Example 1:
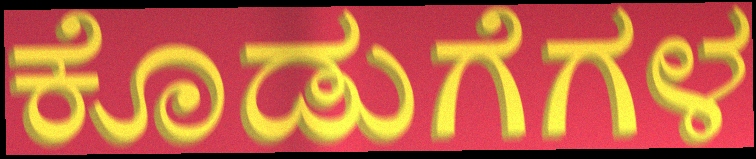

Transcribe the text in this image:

ಕೊಡುಗೆಗಳ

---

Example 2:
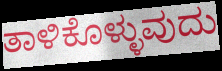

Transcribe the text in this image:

ತಾಳಿಕೊಳ್ಳುವುದು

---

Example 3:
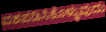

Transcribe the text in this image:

ವಶಪಡಿಸಿಕೊಳ್ಳುವುದು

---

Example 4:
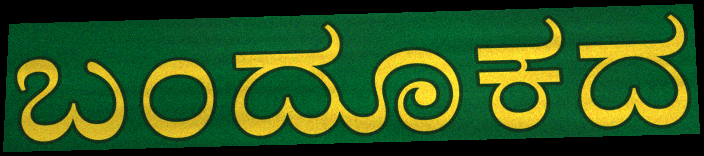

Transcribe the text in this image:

ಬಂದೂಕದ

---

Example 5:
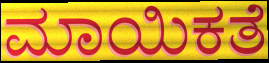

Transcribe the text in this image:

ಮಾಯಿಕತೆ